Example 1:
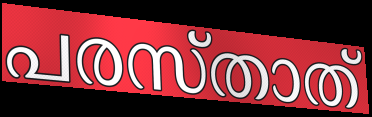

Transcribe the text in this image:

പരസ്താത്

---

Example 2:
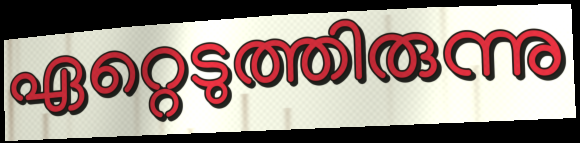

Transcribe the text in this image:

ഏറ്റെടുത്തിരുന്നു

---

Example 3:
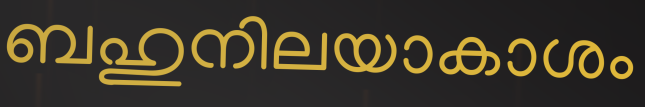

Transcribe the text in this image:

ബഹുനിലയാകാശം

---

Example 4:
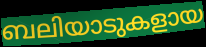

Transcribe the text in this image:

ബലിയാടുകളായ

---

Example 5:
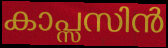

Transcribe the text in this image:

കാപ്സസിൻ